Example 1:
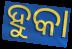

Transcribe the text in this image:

ହୁକା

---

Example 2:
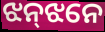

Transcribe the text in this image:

ଝନ୍‌ଝନେ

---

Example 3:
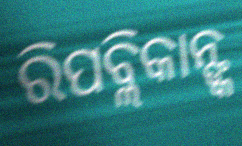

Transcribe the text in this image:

ରିପବ୍ଲିକାନ୍ଙ୍କ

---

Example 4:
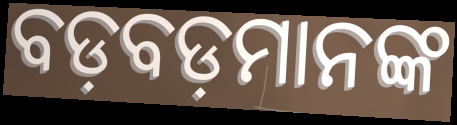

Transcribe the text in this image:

ବଡ଼ବଡ଼ମାନଙ୍କ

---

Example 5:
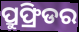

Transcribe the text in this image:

ପ୍ରୁଫ୍ରିଡର